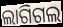
ଲାଗିଗଲ